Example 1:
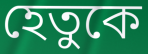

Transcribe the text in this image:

হেতুকে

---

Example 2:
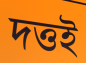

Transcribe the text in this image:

দত্তই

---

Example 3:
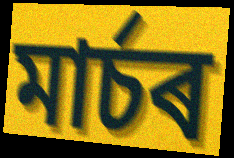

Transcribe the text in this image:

মাৰ্চৰ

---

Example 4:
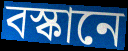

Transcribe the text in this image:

বস্কানে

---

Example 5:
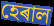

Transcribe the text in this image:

হেৰাল